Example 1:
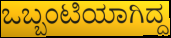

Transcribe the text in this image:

ಒಬ್ಬಂಟಿಯಾಗಿದ್ದ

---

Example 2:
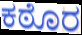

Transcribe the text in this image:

ಕಠೊರ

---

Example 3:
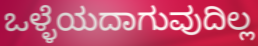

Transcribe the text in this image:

ಒಳ್ಳೆಯದಾಗುವುದಿಲ್ಲ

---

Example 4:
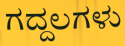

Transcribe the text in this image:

ಗದ್ದಲಗಳು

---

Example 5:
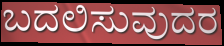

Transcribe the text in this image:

ಬದಲಿಸುವುದರ